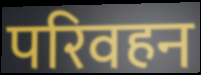
परिवहन